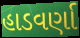
હાડવર્ણા